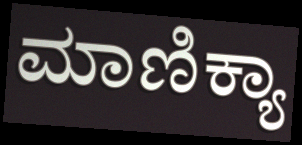
ಮಾಣಿಕ್ಯಾ